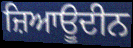
ਜ਼ਿਆਊਦੀਨ